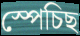
স্পেচিছ